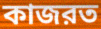
কাজরত